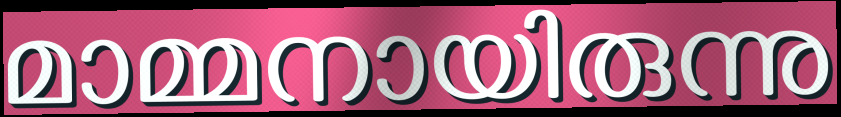
മാമ്മനായിരുന്നു